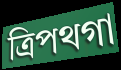
ত্রিপথগা